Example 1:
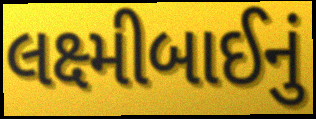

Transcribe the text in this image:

લક્ષ્મીબાઈનું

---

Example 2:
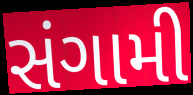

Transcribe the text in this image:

સંગામી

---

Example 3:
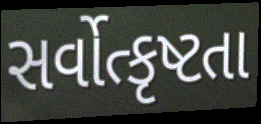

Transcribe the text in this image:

સર્વોત્કૃષ્ટતા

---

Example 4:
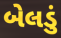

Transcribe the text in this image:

બેલડું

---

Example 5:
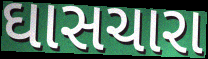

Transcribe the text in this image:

ઘાસચારા